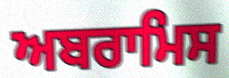
ਅਬਰਾਮਿਸ